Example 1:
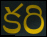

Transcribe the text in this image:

కరి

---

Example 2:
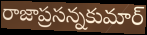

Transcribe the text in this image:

రాజాప్రసన్నకుమార్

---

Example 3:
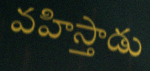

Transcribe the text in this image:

వహిస్తాడు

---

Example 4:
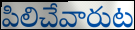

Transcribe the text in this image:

పిలిచేవారుట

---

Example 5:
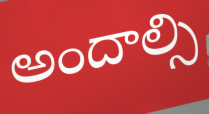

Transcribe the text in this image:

అందాల్సి